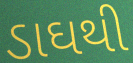
ડાઘથી